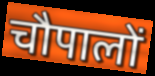
चौपालों